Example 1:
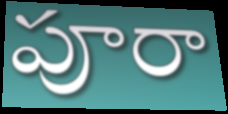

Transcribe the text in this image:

పూరా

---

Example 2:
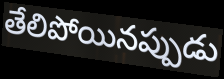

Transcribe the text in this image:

తేలిపోయినప్పుడు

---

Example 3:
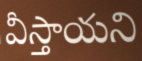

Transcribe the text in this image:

వీస్తాయని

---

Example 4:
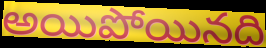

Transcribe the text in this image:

అయిపోయినది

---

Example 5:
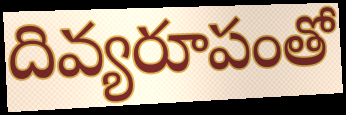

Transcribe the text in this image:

దివ్యరూపంతో